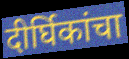
दीर्घिकांचा